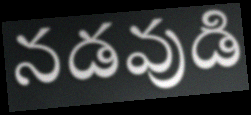
నడవుడి